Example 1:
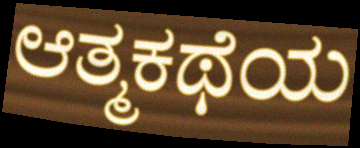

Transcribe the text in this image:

ಆತ್ಮಕಥೆಯ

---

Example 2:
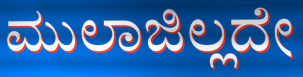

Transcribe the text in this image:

ಮುಲಾಜಿಲ್ಲದೇ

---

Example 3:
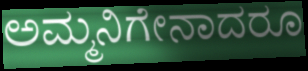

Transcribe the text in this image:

ಅಮ್ಮನಿಗೇನಾದರೂ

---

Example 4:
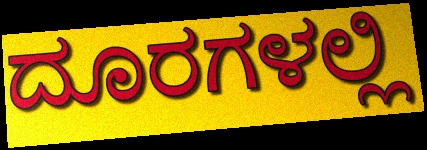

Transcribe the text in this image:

ದೂರಗಳಲ್ಲಿ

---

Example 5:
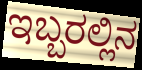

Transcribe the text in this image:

ಇಬ್ಬರಲ್ಲಿನ